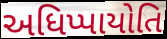
અધિપ્પાયોતિ